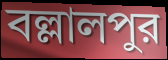
বল্লালপুর